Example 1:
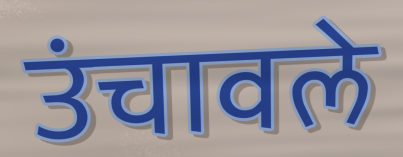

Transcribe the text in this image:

उंचावले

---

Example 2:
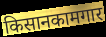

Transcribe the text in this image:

किसानकामगार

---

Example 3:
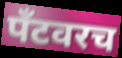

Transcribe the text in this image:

पँटवरच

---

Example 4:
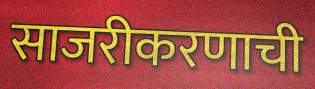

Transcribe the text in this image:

साजरीकरणाची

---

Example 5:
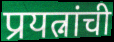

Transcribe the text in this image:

प्रयत्नांची